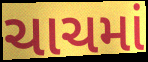
ચાચમાં